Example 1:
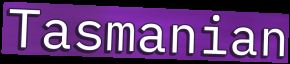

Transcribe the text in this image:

Tasmanian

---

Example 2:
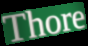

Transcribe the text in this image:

Thore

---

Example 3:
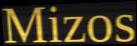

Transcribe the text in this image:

Mizos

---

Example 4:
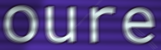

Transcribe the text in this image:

oure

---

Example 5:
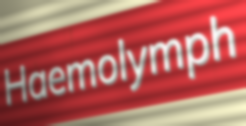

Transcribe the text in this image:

Haemolymph